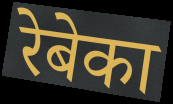
रेबेका